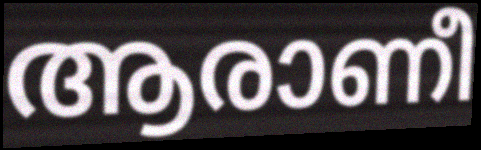
ആരാണീ